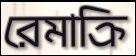
রেমাক্রি